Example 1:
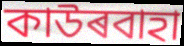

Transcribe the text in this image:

কাউৰবাহা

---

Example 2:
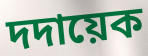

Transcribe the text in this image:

দদায়েক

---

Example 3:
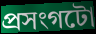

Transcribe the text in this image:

প্ৰসংগটো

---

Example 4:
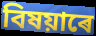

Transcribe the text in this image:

বিষয়াৰে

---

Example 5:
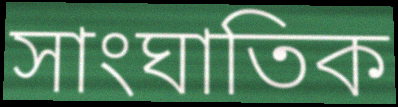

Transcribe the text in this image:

সাংঘাতিক